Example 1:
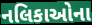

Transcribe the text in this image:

નલિકાઓના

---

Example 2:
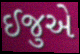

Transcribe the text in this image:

ઈજુએ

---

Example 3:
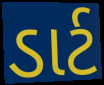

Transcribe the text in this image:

ડાર્ટ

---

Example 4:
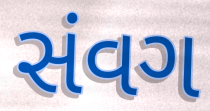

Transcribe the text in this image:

સંવગ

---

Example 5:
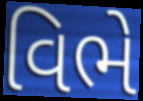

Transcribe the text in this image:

વિભે